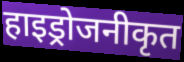
हाइड्रोजनीकृत